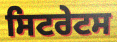
ਸਿਟਰੇਟਸ